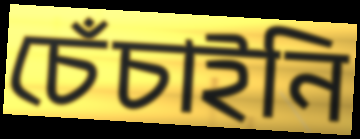
চেঁচাইনি